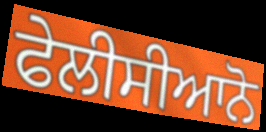
ਫੇਲੀਸੀਆਨੋ